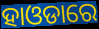
ହାଓଡାରେ